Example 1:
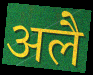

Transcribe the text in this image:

अलै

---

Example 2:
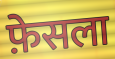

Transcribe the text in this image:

फ़ेसला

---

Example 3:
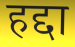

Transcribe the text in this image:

हद्दा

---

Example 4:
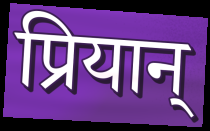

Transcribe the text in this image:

प्रियान्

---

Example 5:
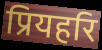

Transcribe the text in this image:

प्रियहरि